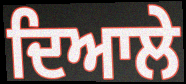
ਦਿਆਲੇ